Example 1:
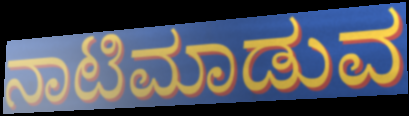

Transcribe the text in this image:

ನಾಟಿಮಾಡುವ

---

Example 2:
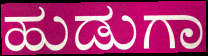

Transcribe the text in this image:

ಹುಡುಗಾ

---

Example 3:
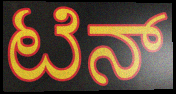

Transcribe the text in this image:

ಟೆನ್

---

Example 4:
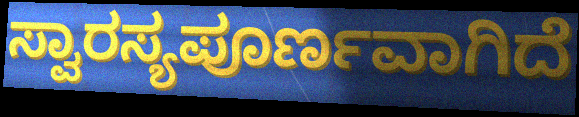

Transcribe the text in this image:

ಸ್ವಾರಸ್ಯಪೂರ್ಣವಾಗಿದೆ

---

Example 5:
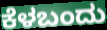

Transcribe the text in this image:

ಕೆಳಬಂದು